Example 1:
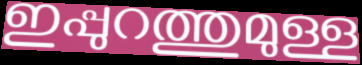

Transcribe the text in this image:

ഇപ്പുറത്തുമുള്ള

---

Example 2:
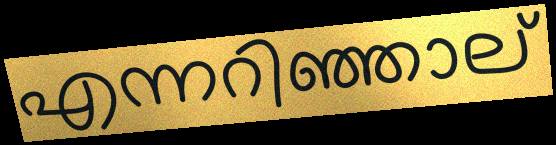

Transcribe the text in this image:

എന്നറിഞ്ഞാല്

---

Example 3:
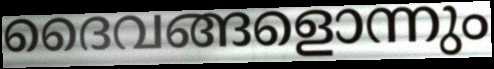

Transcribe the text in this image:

ദൈവങ്ങളൊന്നും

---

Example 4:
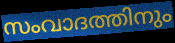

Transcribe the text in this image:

സംവാദത്തിനും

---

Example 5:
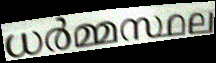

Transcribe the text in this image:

ധർമ്മസ്ഥല